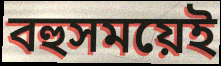
বহুসময়েই